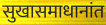
सुखासमाधानांत